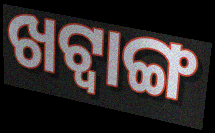
ଖଟ୍ଵାଙ୍ଗ